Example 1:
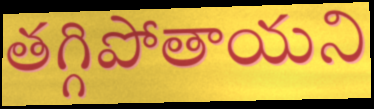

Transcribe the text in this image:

తగ్గిపోతాయని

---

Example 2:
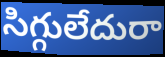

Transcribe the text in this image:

సిగ్గులేదురా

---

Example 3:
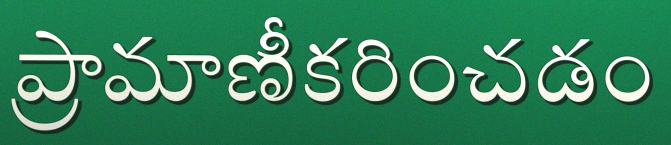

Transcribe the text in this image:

ప్రామాణీకరించడం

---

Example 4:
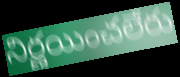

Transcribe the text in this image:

నిర్ణయించలేరు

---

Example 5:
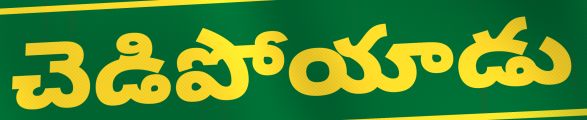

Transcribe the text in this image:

చెడిపోయాడు